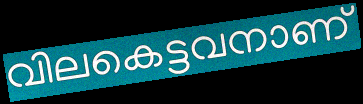
വിലകെട്ടവനാണ്